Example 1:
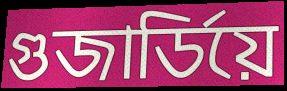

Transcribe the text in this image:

গুজাৰ্ডিয়ে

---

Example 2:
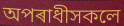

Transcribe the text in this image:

অপৰাধীসকলে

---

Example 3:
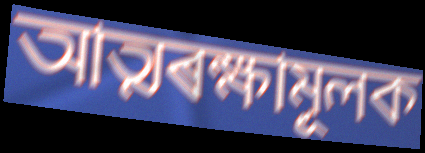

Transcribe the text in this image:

আত্মৰক্ষামূলক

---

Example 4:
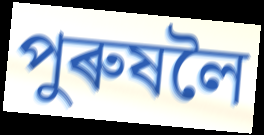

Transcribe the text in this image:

পুৰুষলৈ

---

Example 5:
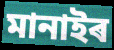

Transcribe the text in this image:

মানাইৰ